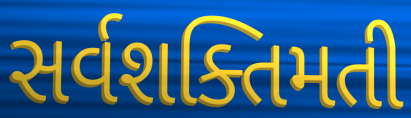
સર્વશક્તિમતી